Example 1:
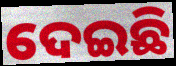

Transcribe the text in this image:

ଦେଇଛି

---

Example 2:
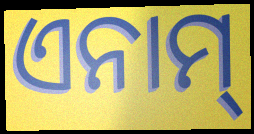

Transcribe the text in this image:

ଏନାମ୍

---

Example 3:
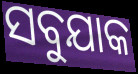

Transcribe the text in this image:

ସବୁଯାକ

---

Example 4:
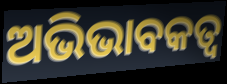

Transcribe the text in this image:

ଅଭିଭାବକତ୍ବ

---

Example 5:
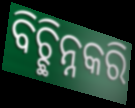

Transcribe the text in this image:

ବିଚ୍ଛିନ୍ନକରି